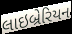
લાઇબ્રેરિયન